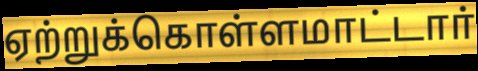
ஏற்றுக்கொள்ளமாட்டார்